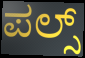
ಪಲ್ಸ್